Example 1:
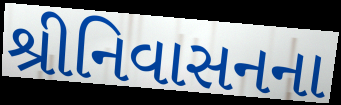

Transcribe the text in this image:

શ્રીનિવાસનના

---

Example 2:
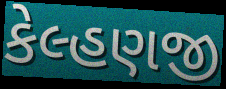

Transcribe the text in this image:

કેલ્હણજી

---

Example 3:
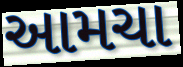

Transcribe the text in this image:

આમચા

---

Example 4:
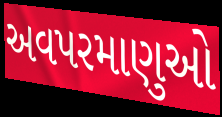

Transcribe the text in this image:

અવપરમાણુઓ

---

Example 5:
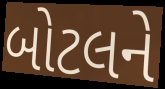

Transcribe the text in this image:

બોટલને